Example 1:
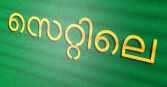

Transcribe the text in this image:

സെറ്റിലെ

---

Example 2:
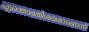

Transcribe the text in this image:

എന്തൊരതിശയമാണെന്ന്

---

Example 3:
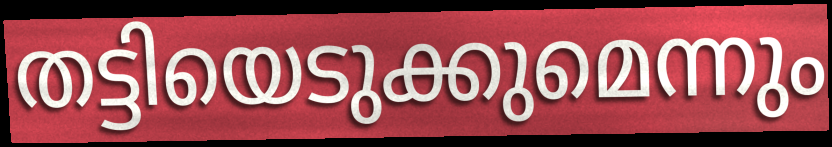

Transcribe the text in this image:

തട്ടിയെടുക്കുമെന്നും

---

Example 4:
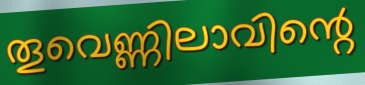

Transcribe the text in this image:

തൂവെണ്ണിലാവിന്റെ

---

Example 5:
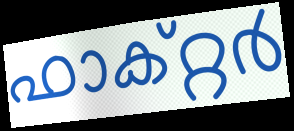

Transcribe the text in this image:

ഫാക്റ്റർ